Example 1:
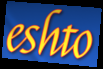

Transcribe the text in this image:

eshto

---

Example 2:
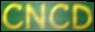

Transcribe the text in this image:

CNCD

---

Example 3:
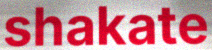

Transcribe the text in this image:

shakate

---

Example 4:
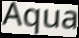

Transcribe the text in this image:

Aqua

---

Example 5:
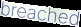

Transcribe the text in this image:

breached